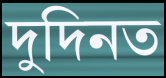
দুদিনত